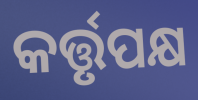
କର୍ତ୍ତୃପକ୍ଷ